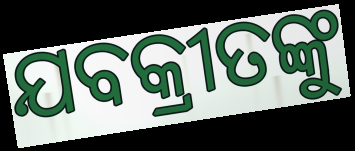
ଯବକ୍ରୀତଙ୍କୁ